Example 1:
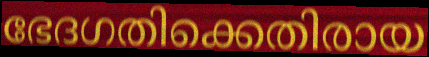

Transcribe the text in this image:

ഭേദഗതിക്കെതിരായ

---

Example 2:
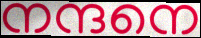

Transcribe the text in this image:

നന്ദനെ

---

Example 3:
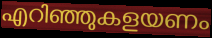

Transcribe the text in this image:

എറിഞ്ഞുകളയണം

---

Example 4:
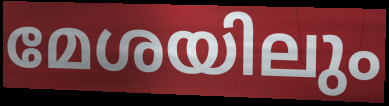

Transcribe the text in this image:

മേശയിലും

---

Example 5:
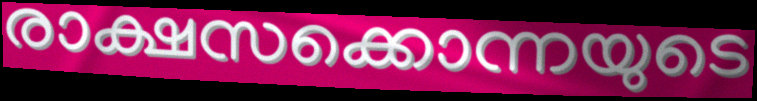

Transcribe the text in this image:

രാക്ഷസക്കൊന്നയുടെ